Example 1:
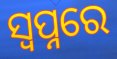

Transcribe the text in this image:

ସ୍ୱପ୍ନରେ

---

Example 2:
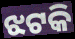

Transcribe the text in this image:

ଝଟକି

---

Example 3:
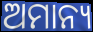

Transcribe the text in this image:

ଅମାନ୍ୟ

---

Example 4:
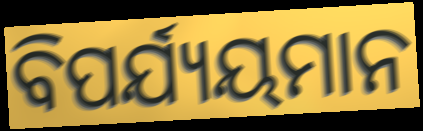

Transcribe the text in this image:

ବିପର୍ଯ୍ୟୟମାନ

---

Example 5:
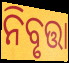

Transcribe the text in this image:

ନିବୃତ୍ତା